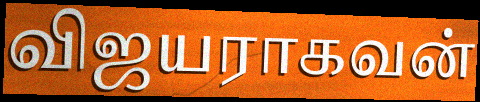
விஜயராகவன்